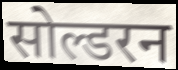
सोल्डरन